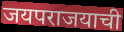
जयपराजयाची